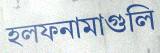
হলফনামাগুলি